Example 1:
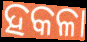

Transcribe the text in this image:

ହକଳା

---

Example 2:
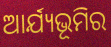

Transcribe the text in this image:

ଆର୍ଯ୍ୟଭୂମିର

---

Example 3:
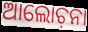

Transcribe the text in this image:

ଆଲୋଚ଼ନା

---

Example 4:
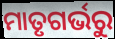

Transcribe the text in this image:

ମାତୃଗର୍ଭରୁ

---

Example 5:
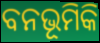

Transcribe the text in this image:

ବନଭୂମିକି